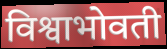
विश्वाभोवती